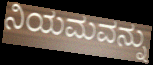
ನಿಯಮವನ್ನು